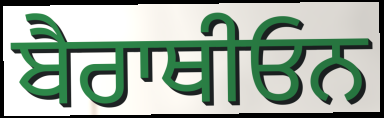
ਬੈਰਾਥੀਓਨ